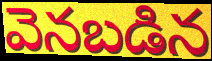
వెనబడిన